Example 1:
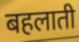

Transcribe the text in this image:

बहलाती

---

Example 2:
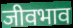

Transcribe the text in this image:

जीवभाव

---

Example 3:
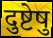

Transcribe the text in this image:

दुष्टेषु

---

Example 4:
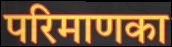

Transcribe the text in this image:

परिमाणका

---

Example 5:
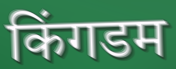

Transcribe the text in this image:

किंगडम